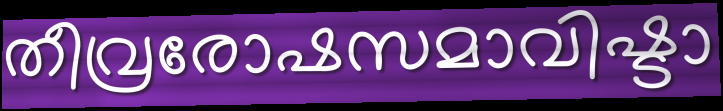
തീവ്രരോഷസമാവിഷ്ടാ